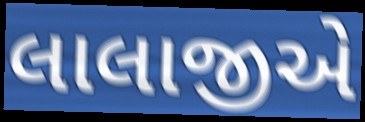
લાલાજીએ